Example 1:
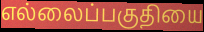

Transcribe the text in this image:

எல்லைப்பகுதியை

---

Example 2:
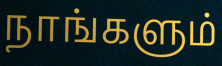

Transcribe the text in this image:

நாங்களும்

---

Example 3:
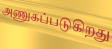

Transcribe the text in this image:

அணுகப்படுகிறது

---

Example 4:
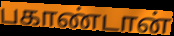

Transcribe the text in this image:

பகாண்டான்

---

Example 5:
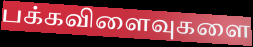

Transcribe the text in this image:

பக்கவிளைவுகளை